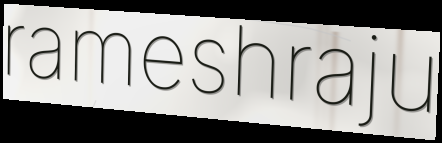
rameshraju